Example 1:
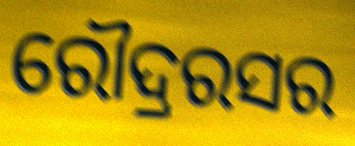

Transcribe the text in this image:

ରୌଦ୍ରରସର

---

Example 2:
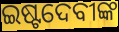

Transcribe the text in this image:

ଇଷ୍ଟଦେବୀଙ୍କ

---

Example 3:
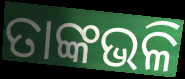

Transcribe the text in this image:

ତାଙ୍କଭଳି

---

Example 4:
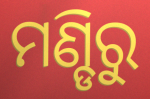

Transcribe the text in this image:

ମଣ୍ଡିରୁ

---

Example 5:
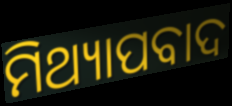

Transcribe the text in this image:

ମିଥ୍ୟାପବାଦ